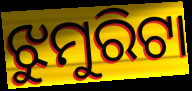
ଝୁମୁରିଟା